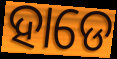
ହାଡେ